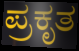
ಪ್ರಕೃತ